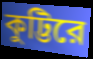
কুট্টিরে